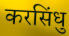
करसिंधु